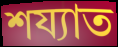
শয্যাত